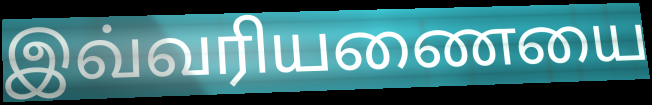
இவ்வரியணையை